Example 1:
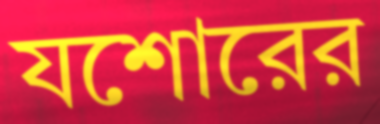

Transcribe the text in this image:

যশোরের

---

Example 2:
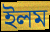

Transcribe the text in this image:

ইলম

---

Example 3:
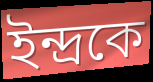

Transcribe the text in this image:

ইন্দ্রকে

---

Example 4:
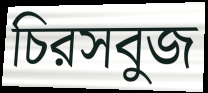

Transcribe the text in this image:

চিরসবুজ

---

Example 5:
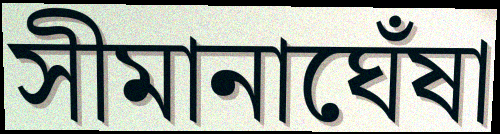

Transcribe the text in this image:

সীমানাঘেঁষা